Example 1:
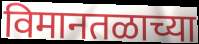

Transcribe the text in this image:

विमानतळाच्या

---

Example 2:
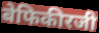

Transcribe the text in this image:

बेफिकीरजी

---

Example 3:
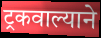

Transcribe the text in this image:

ट्रकवाल्याने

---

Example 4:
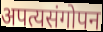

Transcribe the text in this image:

अपत्यसंगोपन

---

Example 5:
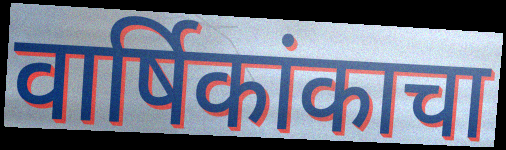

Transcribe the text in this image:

वार्षिकांकाचा